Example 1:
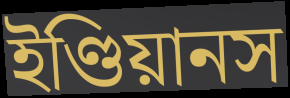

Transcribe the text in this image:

ইণ্ডিয়ানস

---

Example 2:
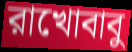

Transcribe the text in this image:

রাখোবাবু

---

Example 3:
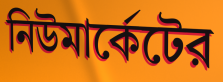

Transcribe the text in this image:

নিউমার্কেটের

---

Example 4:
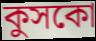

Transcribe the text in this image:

কুসকো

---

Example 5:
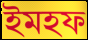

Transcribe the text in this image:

ইমহফ